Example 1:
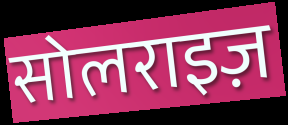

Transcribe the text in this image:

सोलराइज़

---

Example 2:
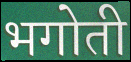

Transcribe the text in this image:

भगोती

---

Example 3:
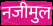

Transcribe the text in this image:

नजीमुल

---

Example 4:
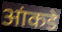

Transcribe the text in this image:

आंकडे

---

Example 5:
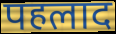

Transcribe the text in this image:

पहलाद